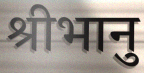
श्रीभानु